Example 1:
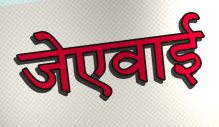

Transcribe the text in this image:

जेएवाई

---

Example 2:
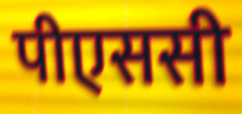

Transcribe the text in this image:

पीएससी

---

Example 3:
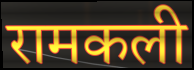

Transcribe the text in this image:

रामकली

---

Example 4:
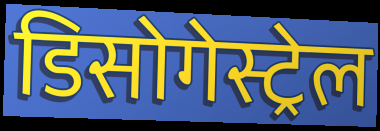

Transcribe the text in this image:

डिसोगेस्ट्रेल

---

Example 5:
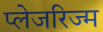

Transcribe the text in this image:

प्लेजरिज्म